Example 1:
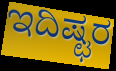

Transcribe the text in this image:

ಇದಿಷ್ಟರ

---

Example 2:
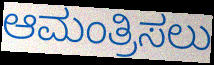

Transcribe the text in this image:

ಆಮಂತ್ರಿಸಲು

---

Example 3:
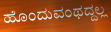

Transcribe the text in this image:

ಹೊಂದುವಂಥದ್ದಲ್ಲ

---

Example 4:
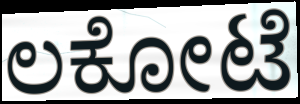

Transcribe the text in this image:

ಲಕೋಟೆ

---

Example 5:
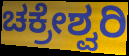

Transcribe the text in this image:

ಚಕ್ರೇಶ್ವರಿ